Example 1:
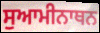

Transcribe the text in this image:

ਸੁਆਮੀਨਾਥਨ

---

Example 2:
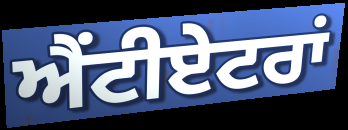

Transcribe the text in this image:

ਐਂਟੀਏਟਰਾਂ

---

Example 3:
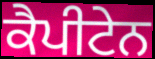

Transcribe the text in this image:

ਕੈਪੀਟੇਨ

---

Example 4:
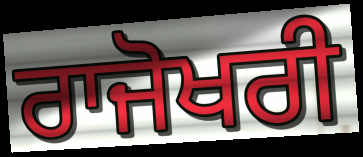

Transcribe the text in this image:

ਰਾਜੋਖਰੀ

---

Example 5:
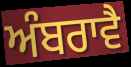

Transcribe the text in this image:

ਅੰਬਰਾਵੈ